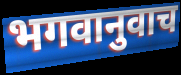
भगवानुवाच